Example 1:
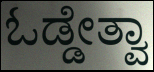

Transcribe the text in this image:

ಓಡ್ಡೇತ್ವಾ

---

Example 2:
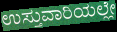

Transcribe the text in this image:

ಉಸ್ತುವಾರಿಯಲ್ಲೇ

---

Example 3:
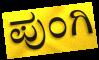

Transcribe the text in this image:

ಪುಂಗಿ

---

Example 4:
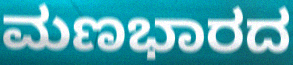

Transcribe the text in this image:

ಮಣಭಾರದ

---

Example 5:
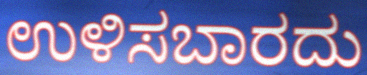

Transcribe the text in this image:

ಉಳಿಸಬಾರದು